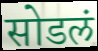
सोडलं